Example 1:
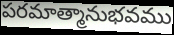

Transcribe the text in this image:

పరమాత్మానుభవము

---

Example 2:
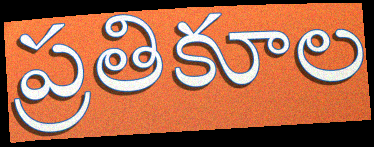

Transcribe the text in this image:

ప్రతికూల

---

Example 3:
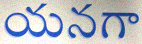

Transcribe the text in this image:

యనగా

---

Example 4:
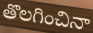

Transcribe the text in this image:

తొలగించినా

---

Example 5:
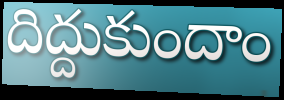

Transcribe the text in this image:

దిద్దుకుందాం